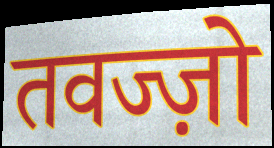
तवज्ज़ो